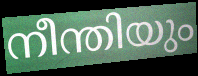
നീന്തിയും